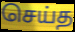
செய்த